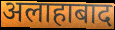
अलाहाबाद